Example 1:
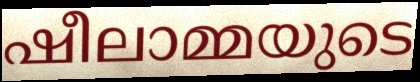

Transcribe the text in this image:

ഷീലാമ്മയുടെ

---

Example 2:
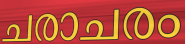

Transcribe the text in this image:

ചരാചരം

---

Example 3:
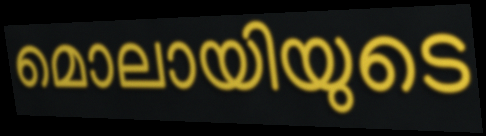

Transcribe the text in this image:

മൊലായിയുടെ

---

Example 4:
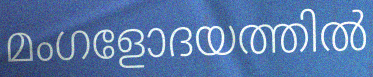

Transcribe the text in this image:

മംഗളോദയത്തിൽ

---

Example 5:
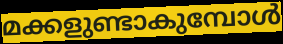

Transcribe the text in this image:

മക്കളുണ്ടാകുമ്പോൾ